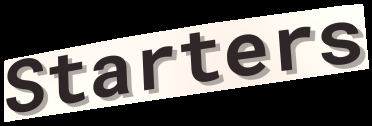
Starters